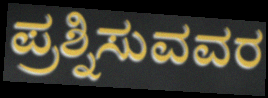
ಪ್ರಶ್ನಿಸುವವರ